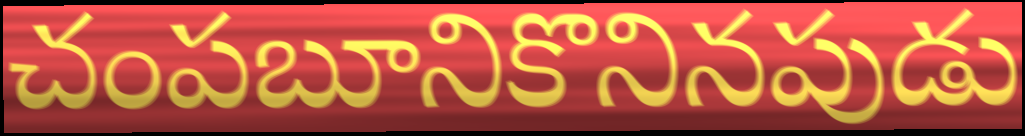
చంపబూనికొనినపుడు